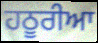
ਹਠੂਰੀਆ